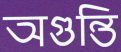
অগুন্তি